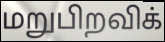
மறுபிறவிக்